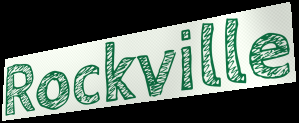
Rockville